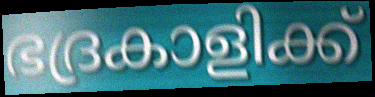
ഭദ്രകാളിക്ക്